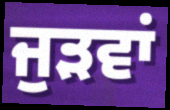
ਜੁੜਵਾਂ